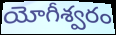
యోగీశ్వరం